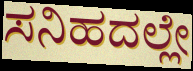
ಸನಿಹದಲ್ಲೇ